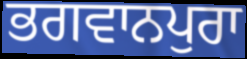
ਭਗਵਾਨਪੁਰਾ